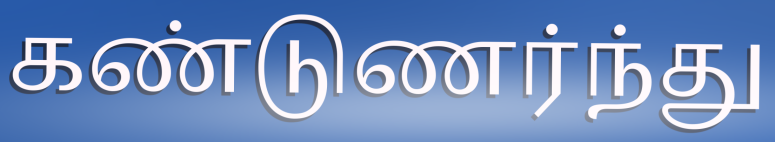
கண்டுணர்ந்து